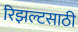
रिझल्टसाठी